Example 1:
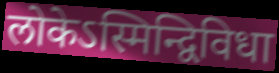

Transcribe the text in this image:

लोकेऽस्मिन्द्विविधा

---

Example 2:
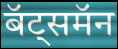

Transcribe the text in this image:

बॅट्समॅन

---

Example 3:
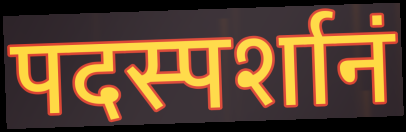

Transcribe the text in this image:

पदस्पर्शानं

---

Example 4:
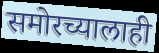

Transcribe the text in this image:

समोरच्यालाही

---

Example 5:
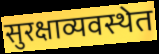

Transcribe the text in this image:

सुरक्षाव्यवस्थेत